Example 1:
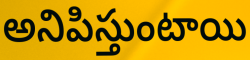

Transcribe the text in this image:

అనిపిస్తుంటాయి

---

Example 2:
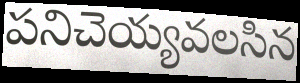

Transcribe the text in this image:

పనిచెయ్యవలసిన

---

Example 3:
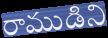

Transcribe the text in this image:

రాముడిని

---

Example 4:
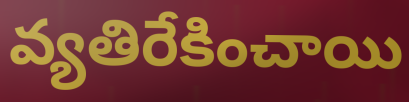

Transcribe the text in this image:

వ్యతిరేకించాయి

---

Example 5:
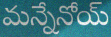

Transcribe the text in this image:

మన్నేనోయ్